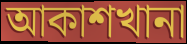
আকাশখানা